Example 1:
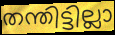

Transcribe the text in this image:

തന്തിട്ടില്ലാ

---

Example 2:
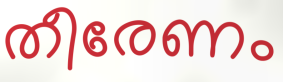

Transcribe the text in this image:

തീരേണം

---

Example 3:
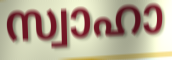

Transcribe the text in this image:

സ്വാഹാ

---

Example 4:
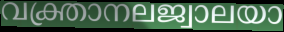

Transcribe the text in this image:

വക്ത്രാനലജ്വാലയാ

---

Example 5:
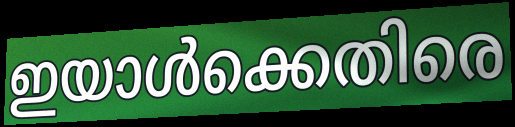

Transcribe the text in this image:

ഇയാൾക്കെതിരെ